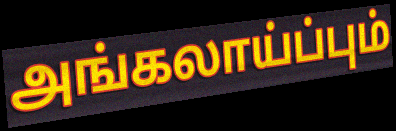
அங்கலாய்ப்பும்